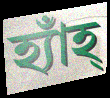
হ্যাঁহ্